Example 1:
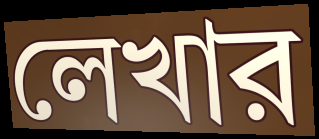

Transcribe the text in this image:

লেখার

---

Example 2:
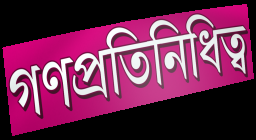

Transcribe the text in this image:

গণপ্রতিনিধিত্ব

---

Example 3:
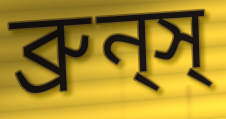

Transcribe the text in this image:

ব্রুন্‌স্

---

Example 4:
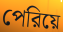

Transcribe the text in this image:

পেরিয়ে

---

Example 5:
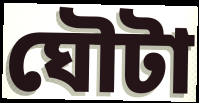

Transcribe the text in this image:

ঘৌটা